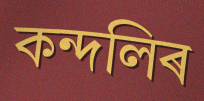
কন্দলিৰ